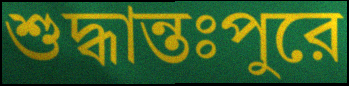
শুদ্ধান্তঃপুরে